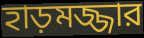
হাড়মজ্জার